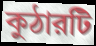
কুঠারটি